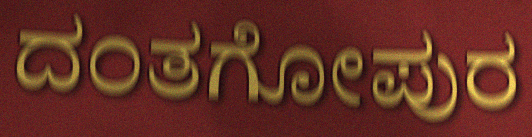
ದಂತಗೋಪುರ